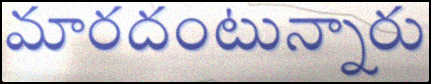
మారదంటున్నారు